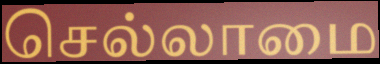
செல்லாமை